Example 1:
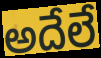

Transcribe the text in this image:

అదేలే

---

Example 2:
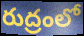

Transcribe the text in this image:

రుద్రంలో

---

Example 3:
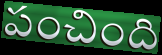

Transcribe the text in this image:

పంచింది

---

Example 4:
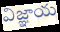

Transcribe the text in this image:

విజ్ఞాయ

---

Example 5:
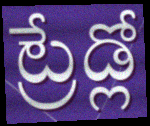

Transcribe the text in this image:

ట్రేడ్లో